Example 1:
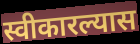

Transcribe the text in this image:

स्वीकारल्यास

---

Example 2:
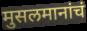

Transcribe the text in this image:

मुसलमानांचं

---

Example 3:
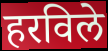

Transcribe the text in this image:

हरविले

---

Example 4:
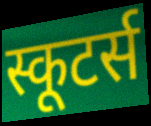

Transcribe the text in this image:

स्कूटर्स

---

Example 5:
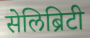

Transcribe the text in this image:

सेलिब्रिटी